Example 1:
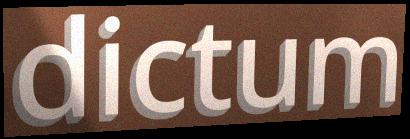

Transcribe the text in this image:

dictum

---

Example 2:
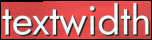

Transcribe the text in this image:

textwidth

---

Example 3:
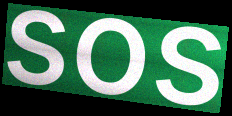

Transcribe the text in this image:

sos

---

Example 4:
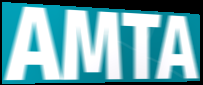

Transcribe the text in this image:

AMTA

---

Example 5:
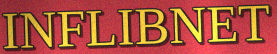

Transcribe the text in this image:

INFLIBNET